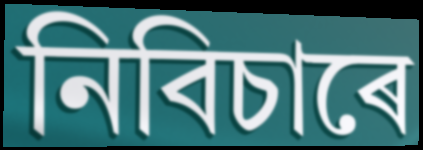
নিবিচাৰে